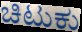
ಚಿಟುಕು